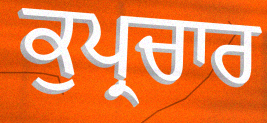
ਕੁਪ੍ਰਚਾਰ